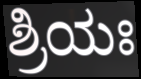
ಶ್ರಿಯಃ